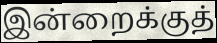
இன்றைக்குத்